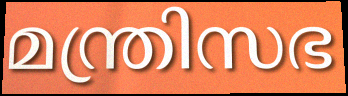
മന്ത്രിസഭ